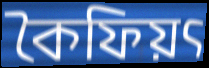
কৈফিয়ৎ